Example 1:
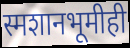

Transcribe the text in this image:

स्मशानभूमीही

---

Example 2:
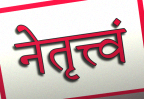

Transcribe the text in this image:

नेतृत्त्वं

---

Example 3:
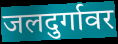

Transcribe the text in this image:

जलदुर्गावर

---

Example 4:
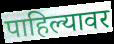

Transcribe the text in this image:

पाहिल्यावर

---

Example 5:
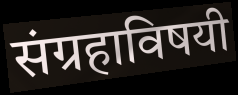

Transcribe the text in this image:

संग्रहाविषयी